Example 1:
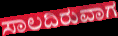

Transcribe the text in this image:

ಸಾಲದಿರುವಾಗ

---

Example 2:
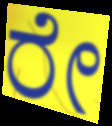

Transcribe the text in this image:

ರೇ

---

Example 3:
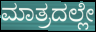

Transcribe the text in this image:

ಮಾತ್ರದಲ್ಲೇ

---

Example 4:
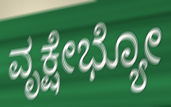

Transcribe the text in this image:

ವೃಕ್ಷೇಭ್ಯೋ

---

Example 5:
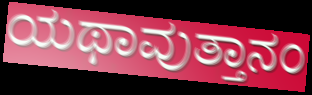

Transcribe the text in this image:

ಯಥಾವುತ್ತಾನಂ